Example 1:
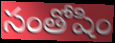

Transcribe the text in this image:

సంతోషిం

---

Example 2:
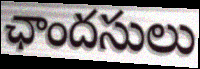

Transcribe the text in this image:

ఛాందసులు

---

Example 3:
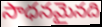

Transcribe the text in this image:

సాధనమైనది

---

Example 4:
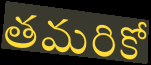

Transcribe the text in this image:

తమరికో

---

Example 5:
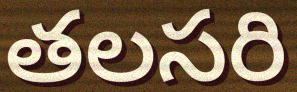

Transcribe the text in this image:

తలసరి